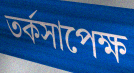
তর্কসাপেক্ষ